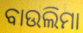
ବାଉଲିମା